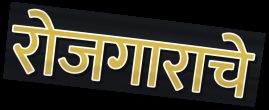
रोजगाराचे